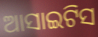
ଆସାଇଟିସ